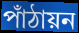
পাঁঠায়ন